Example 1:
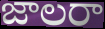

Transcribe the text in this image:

జాలరా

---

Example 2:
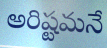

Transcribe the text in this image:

అరిష్టమనే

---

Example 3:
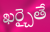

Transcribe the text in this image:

ఖర్చైతే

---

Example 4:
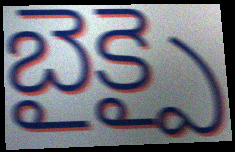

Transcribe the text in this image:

బైక్పై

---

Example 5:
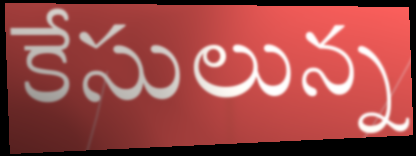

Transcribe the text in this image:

కేసులున్న